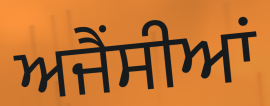
ਅਜੈਂਸੀਆਂ